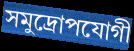
সমুদ্রোপযোগী